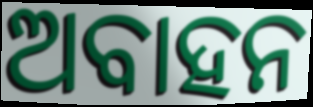
ଅବାହନ